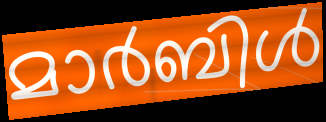
മാർബിൾ